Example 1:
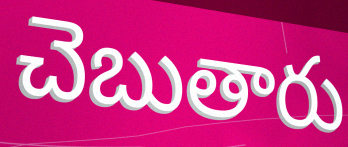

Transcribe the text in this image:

చెబుతారు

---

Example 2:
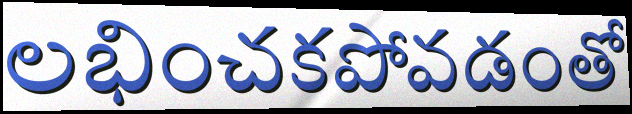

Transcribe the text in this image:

లభించకపోవడంతో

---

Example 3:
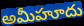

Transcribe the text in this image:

అమీహూదు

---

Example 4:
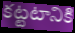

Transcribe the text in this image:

కట్టటానికి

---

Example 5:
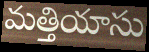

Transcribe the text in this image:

మత్తియాసు